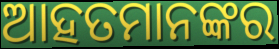
ଆହତମାନଙ୍କର